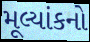
મૂલ્યાંકનો